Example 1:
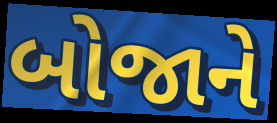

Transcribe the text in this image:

બોજાને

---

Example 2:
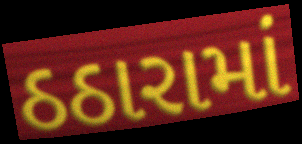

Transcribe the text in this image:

ઠઠારામાં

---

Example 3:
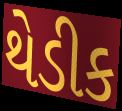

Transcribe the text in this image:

થેડીક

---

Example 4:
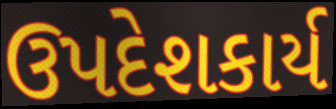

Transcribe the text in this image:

ઉપદેશકાર્ય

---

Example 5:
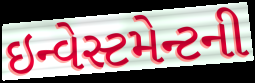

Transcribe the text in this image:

ઇન્વેસ્ટમેન્ટની